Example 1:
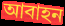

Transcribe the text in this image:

আবাহন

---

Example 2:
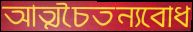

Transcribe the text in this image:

আত্মচৈতন্যবোধ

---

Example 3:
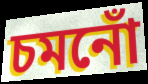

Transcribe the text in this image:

চমনোঁ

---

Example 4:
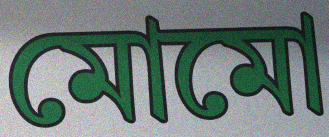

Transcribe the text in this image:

মোমো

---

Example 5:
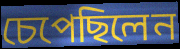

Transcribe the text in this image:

চেপেছিলেন